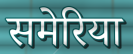
समेरिया